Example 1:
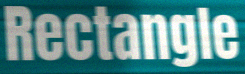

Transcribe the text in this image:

Rectangle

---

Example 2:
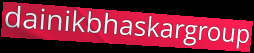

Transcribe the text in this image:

dainikbhaskargroup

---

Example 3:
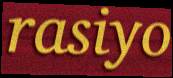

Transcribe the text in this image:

rasiyo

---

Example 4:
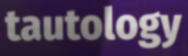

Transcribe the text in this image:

tautology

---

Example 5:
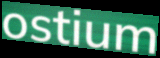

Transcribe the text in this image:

ostium